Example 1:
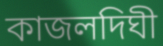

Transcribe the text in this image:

কাজলদিঘী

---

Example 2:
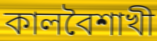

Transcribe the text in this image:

কালবৈশাখী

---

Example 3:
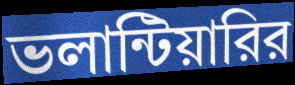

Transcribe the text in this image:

ভলান্টিয়ারির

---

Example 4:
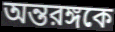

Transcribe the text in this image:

অন্তরঙ্গকে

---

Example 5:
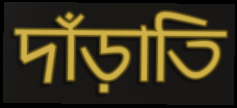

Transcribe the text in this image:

দাঁড়াতি